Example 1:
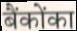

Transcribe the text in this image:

बैंकोंका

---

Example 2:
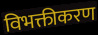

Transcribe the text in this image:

विभक्तीकरण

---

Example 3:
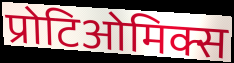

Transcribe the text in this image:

प्रोटिओमिक्स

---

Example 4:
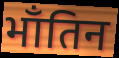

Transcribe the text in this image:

भाँतिन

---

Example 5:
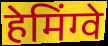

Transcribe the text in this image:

हेमिंग्वे